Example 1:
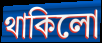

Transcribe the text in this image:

থাকিলো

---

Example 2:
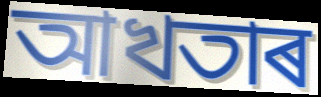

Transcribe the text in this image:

আখতাৰ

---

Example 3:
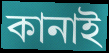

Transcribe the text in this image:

কানাই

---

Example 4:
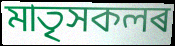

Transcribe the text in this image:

মাতৃসকলৰ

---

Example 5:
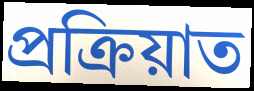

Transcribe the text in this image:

প্ৰক্ৰিয়াত